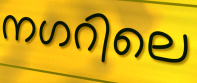
നഗറിലെ